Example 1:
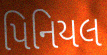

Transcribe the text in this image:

પિનિયલ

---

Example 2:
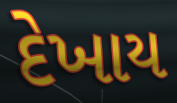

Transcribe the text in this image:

દેખાય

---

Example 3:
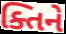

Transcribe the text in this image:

ક્તિને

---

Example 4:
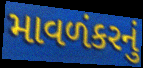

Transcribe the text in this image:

માવળંકરનું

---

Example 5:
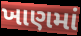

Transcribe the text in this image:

ખાણમાં